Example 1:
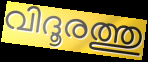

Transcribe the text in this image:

വിദൂരത്തു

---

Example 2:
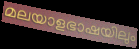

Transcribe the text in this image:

മലയാളഭാഷയിലും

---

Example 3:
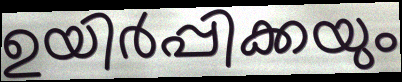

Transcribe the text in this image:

ഉയിർപ്പിക്കയും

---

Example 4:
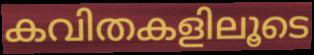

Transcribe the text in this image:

കവിതകളിലൂടെ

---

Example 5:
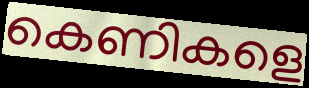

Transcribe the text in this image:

കെണികളെ